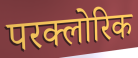
परक्लोरिक